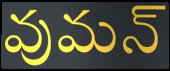
వుమన్